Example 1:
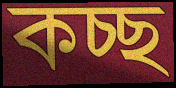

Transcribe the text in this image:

কচ্ছ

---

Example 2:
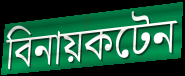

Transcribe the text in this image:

বিনায়কটেন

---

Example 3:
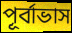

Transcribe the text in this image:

পূৰ্বাভাস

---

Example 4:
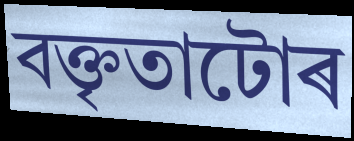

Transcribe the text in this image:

বক্তৃতাটোৰ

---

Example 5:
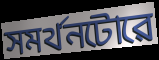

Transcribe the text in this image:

সমৰ্থনটোৱে